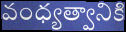
వంధ్యత్వానికి